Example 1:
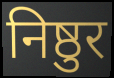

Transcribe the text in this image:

निष्ठुर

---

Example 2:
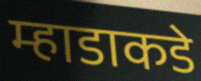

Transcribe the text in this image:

म्हाडाकडे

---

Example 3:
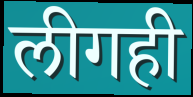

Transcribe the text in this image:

लीगही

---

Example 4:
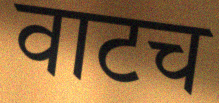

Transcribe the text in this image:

वाटच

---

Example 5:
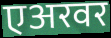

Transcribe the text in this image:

एअरवर